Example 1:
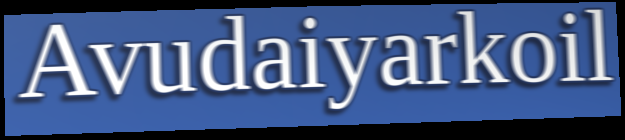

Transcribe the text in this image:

Avudaiyarkoil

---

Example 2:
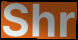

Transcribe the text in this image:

Shr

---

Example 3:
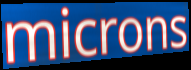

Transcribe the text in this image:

microns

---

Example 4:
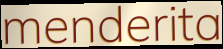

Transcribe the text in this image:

menderita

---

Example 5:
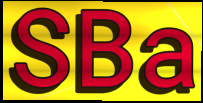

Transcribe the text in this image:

SBa